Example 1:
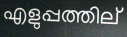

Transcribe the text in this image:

എളുപ്പത്തില്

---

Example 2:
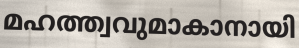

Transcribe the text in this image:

മഹത്ത്വവുമാകാനായി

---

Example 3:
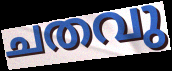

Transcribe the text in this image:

ചതവു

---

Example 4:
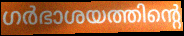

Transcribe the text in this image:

ഗർഭാശയത്തിന്റെ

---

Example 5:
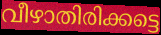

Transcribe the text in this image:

വീഴാതിരിക്കട്ടെ